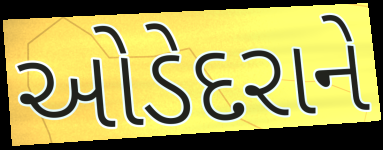
ઓડેદરાને